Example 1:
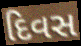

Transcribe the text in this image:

દિવસ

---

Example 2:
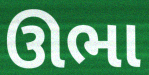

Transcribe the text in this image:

ઊભા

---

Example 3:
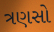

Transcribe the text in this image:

ત્રણસો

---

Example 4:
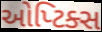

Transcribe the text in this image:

ઓપ્ટિક્સ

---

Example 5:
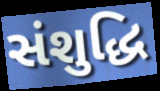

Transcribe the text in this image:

સંશુદ્ધિ